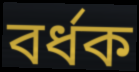
বর্ধক